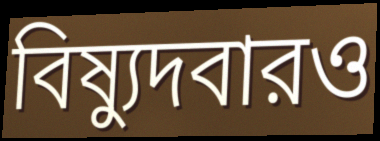
বিষ্যুদবারও